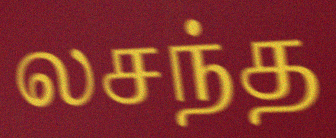
லசந்த